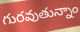
గురవుతున్నాం